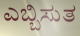
ಎಬ್ಬಿಸುತ